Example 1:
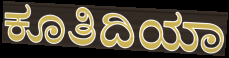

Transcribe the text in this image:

ಕೂತಿದಿಯಾ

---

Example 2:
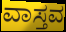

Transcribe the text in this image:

ವಾಸ್ತವ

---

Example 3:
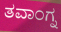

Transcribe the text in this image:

ತವಾಂಗ್ನ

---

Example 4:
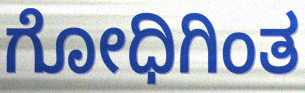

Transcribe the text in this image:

ಗೋಧಿಗಿಂತ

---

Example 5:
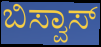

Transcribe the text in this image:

ಬಿಸ್ವಾಸ್